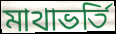
মাথাভর্তি